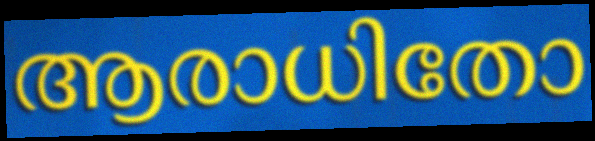
ആരാധിതോ